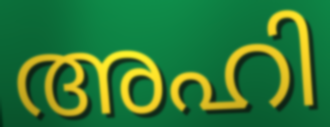
അഹി